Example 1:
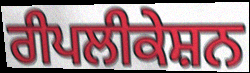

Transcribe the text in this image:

ਰੀਪਲੀਕੇਸ਼ਨ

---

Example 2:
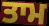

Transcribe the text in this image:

ਤਾਮ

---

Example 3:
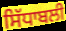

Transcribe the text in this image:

ਸਿੱਧਾਬਲੀ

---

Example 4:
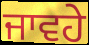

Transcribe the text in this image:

ਜਾਵਹੇ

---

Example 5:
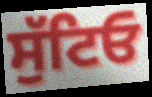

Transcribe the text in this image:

ਸੁੱਟਿਓ